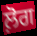
ਲ਼ੋਗ